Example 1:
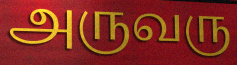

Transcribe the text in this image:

அருவரு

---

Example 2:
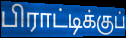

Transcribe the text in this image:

பிராட்டிக்குப்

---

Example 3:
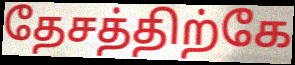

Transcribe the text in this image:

தேசத்திற்கே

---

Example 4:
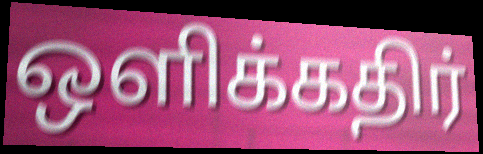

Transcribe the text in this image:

ஒளிக்கதிர்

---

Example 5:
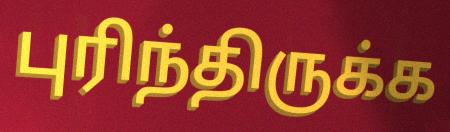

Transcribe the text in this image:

புரிந்திருக்க